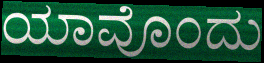
ಯಾವೊಂದು